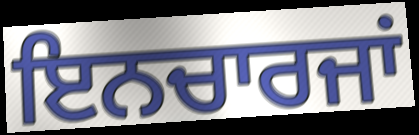
ਇਨਚਾਰਜਾਂ